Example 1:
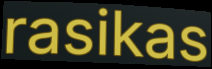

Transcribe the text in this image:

rasikas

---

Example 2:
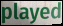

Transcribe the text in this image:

played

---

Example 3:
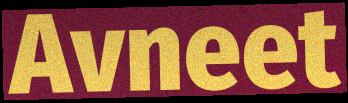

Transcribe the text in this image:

Avneet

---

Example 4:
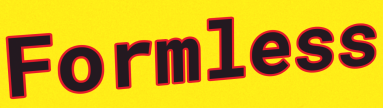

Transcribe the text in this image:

Formless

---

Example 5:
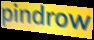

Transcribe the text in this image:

pindrow